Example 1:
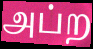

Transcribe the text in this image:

அப்ற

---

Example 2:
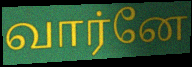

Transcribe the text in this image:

வார்னே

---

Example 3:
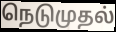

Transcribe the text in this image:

நெடுமுதல்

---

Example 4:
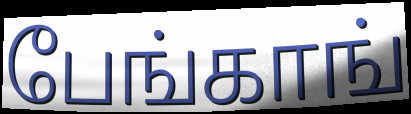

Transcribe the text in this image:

பேங்காங்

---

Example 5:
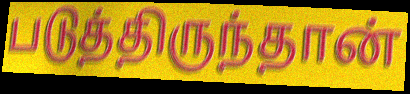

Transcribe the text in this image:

படுத்திருந்தான்